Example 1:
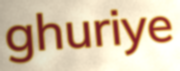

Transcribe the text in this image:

ghuriye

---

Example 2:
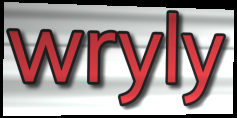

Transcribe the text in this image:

wryly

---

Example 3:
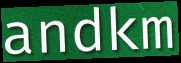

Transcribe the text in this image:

andkm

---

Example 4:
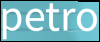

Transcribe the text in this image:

petro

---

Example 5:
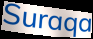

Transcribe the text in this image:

Suraqa